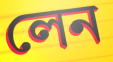
লেন